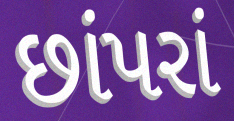
છાંપરાં